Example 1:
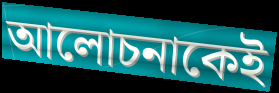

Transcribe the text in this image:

আলোচনাকেই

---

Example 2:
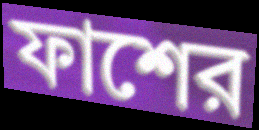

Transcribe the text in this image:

ফাশের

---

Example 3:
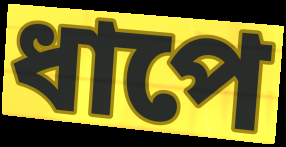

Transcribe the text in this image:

ধাপে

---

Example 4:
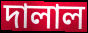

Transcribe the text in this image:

দালাল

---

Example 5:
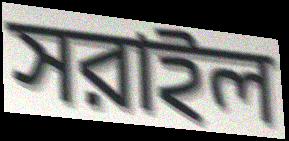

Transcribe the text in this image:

সরাইল